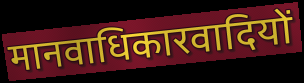
मानवाधिकारवादियों